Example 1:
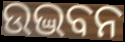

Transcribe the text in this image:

ଉଦ୍ଭବନ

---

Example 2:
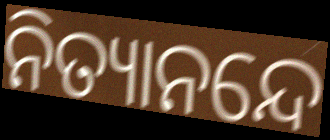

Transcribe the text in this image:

ନିତ୍ୟାନନ୍ଦେ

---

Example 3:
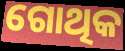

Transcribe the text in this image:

ଗୋଥିକ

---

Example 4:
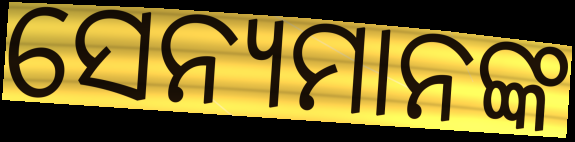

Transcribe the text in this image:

ସେନ୍ୟମାନଙ୍କ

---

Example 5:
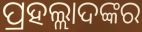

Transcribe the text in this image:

ପ୍ରହଲ୍ଲାଦଙ୍କର